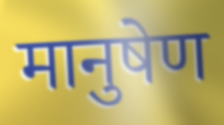
मानुषेण